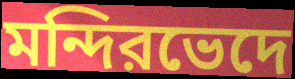
মন্দিরভেদে